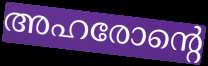
അഹരോന്റെ